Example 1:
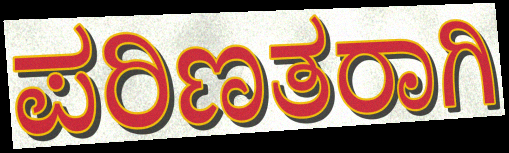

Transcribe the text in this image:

ಪರಿಣತರಾಗಿ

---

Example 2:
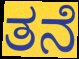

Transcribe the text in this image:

ತನೆ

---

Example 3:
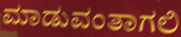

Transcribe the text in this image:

ಮಾಡುವಂತಾಗಲಿ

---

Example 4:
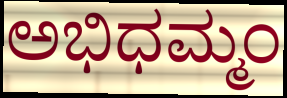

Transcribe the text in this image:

ಅಭಿಧಮ್ಮಂ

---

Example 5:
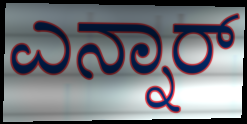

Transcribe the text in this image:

ಎನ್ನಾರ್